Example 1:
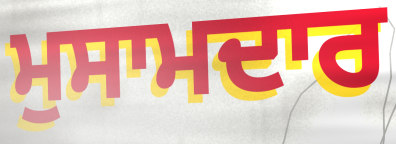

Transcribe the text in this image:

ਮੁਸਾਮਦਾਰ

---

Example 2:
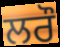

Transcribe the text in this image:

ਲਰੌ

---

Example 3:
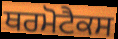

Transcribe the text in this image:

ਥਰਮੋਟੈਕਸ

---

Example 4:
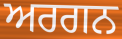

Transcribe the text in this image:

ਅਰਗਨ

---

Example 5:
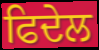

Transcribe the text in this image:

ਫਿਦੇਲ